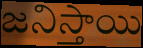
జనిస్తాయి